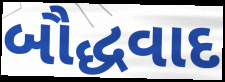
બૌદ્ધવાદ